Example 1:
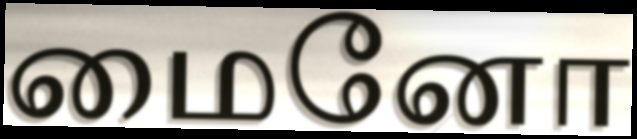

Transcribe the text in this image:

மைனோ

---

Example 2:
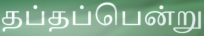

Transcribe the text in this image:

தப்தப்பென்று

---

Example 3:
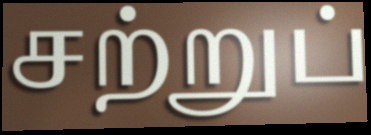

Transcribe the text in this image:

சற்றுப்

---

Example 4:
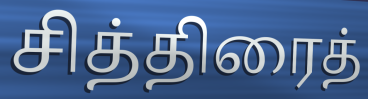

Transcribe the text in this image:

சித்திரைத்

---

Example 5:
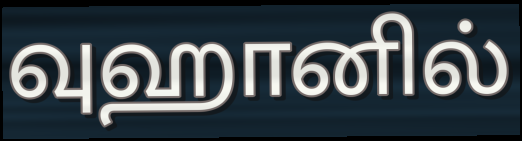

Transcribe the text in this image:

வுஹானில்